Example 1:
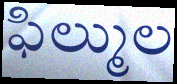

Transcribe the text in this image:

ఫిల్ముల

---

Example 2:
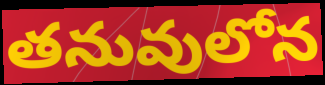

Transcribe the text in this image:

తనువులోన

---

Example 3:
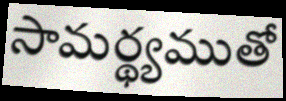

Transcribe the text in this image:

సామర్థ్యముతో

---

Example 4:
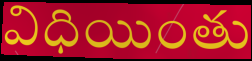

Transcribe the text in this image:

విధియింతు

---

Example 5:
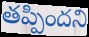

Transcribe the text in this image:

తప్పిందని